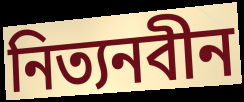
নিত্যনবীন